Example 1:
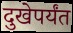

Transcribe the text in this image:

दुखेपर्यंत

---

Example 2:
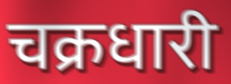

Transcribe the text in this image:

चक्रधारी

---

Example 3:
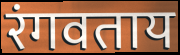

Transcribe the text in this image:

रंगवताय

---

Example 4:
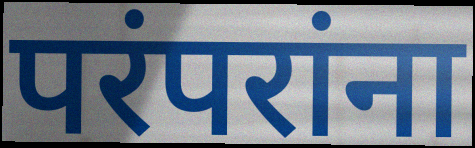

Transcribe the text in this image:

परंपरांना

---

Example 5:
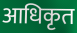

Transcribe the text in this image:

आधिकृत